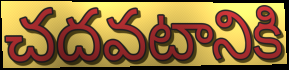
చదవటానికి